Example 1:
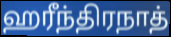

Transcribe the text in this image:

ஹரீந்திரநாத்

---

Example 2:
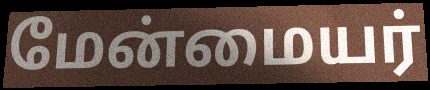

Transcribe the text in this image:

மேன்மையர்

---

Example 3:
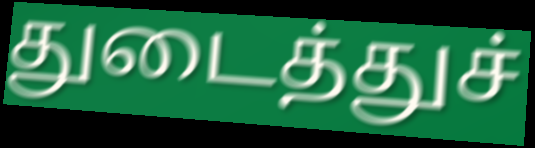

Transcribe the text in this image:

துடைத்துச்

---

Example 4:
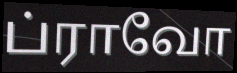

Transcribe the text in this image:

ப்ராவோ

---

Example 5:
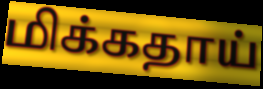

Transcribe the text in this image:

மிக்கதாய்